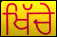
ਖਿੱਚੇ